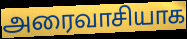
அரைவாசியாக